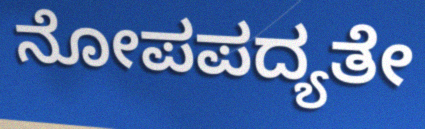
ನೋಪಪದ್ಯತೇ